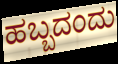
ಹಬ್ಬದಂದು